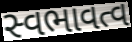
સ્વભાવત્વ